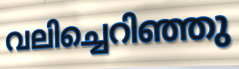
വലിച്ചെറിഞ്ഞു